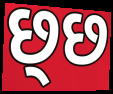
છ્છ